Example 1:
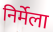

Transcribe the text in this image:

निर्मेला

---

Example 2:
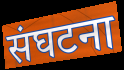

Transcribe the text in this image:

संघटना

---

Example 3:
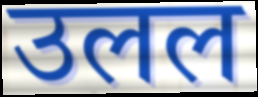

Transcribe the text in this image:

उलल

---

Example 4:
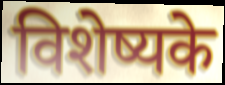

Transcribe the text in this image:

विशेष्यके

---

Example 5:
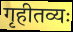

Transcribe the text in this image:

गृहीतव्यः